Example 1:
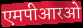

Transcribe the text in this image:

एमपीआरओ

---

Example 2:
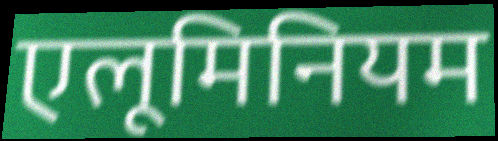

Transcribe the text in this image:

एलूमिनियम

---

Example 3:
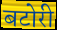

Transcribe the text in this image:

बटोरी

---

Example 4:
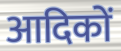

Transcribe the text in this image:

आदिकों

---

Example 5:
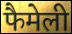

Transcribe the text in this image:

फैमेली